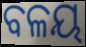
ବଳୟ